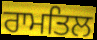
ਰਾਮਤਿਲ